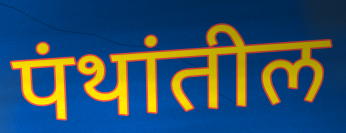
पंथांतील